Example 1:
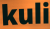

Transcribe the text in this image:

kuli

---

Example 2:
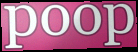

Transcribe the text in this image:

poop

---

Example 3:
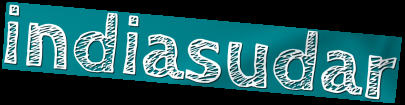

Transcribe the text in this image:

indiasudar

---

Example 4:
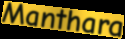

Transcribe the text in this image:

Manthara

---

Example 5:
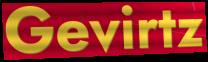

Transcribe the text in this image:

Gevirtz